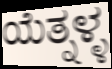
ಯೆತ್ನಳ್ಳ